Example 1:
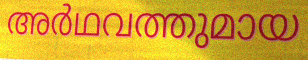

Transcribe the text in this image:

അർഥവത്തുമായ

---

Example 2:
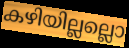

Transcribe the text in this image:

കഴിയില്ലല്ലൊ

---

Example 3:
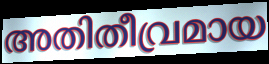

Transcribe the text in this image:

അതിതീവ്രമായ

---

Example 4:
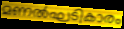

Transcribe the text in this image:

മണൽഘടികാരം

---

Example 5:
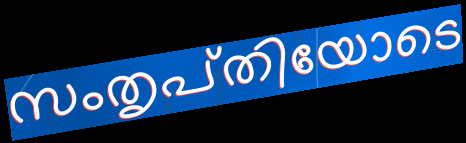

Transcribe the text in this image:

സംതൃപ്‌തിയോടെ